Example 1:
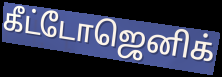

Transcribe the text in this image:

கீட்டோஜெனிக்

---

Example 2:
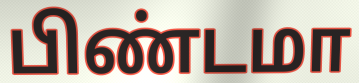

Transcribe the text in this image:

பிண்டமா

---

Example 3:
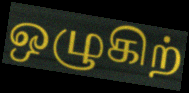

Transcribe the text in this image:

ஒழுகிற்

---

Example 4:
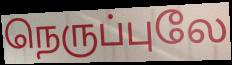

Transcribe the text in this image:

நெருப்புலே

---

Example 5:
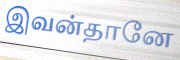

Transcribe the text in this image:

இவன்தானே